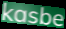
kasbe